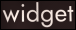
widget